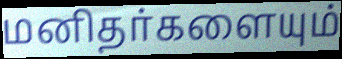
மனிதர்களையும்